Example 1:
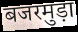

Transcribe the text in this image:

बजरमुड़ा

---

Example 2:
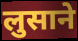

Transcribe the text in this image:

लुसाने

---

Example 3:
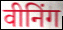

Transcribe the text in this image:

वीनिंग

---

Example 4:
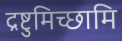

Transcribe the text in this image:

द्रष्टुमिच्छामि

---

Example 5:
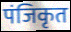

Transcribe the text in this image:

पंजिकृत